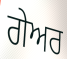
ਗੇਅਰ